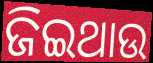
ଜିଇଥାଉ